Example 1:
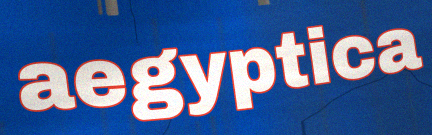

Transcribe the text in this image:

aegyptica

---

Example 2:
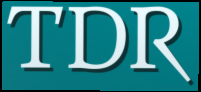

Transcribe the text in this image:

TDR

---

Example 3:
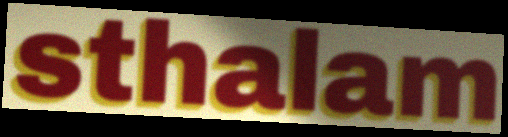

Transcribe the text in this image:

sthalam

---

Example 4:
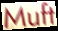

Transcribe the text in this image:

Muft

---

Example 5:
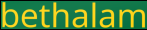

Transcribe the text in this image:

bethalam